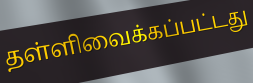
தள்ளிவைக்கப்பட்டது